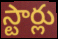
స్టార్లు